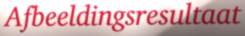
Afbeeldingsresultaat